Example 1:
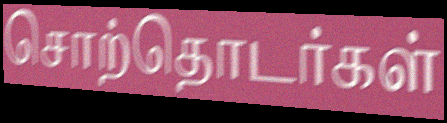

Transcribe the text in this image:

சொற்தொடர்கள்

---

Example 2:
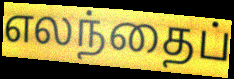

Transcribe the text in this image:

எலந்தைப்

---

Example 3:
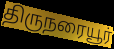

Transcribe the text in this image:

திருநரையூர்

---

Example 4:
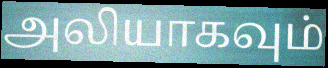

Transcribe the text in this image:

அலியாகவும்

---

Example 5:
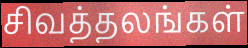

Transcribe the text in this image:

சிவத்தலங்கள்